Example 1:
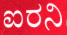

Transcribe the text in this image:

ಐರನಿ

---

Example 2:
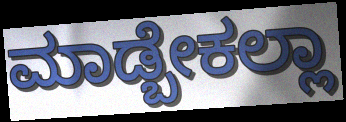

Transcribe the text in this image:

ಮಾಡ್ಬೇಕಲ್ಲಾ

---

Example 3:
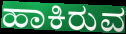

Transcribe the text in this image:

ಹಾಕಿರುವ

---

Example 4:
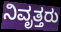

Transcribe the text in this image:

ನಿವೃತ್ತರು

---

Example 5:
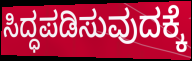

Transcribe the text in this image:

ಸಿದ್ಧಪಡಿಸುವುದಕ್ಕೆ